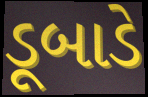
ડૂબાડે